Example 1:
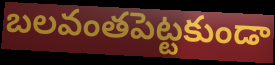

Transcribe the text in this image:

బలవంతపెట్టకుండా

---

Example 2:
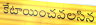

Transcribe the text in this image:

కేటాయించవలసిన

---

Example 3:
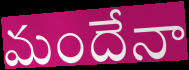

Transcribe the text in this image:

మందేనా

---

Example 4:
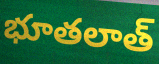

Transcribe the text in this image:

భూతలాత్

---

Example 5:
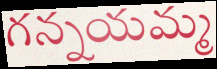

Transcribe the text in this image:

గన్నయమ్మ